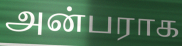
அன்பராக